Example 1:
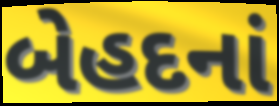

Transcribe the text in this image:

બેહદનાં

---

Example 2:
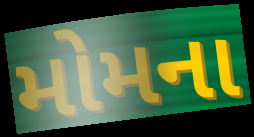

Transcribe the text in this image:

મોમના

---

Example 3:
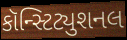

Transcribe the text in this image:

કૉન્સ્ટિટ્યુશનલ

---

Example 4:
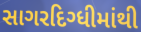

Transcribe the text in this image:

સાગરદિગ્ધીમાંથી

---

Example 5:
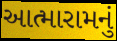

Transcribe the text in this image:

આત્મારામનું